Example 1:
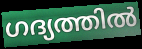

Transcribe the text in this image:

ഗദ്യത്തിൽ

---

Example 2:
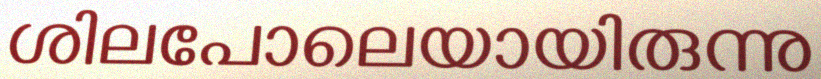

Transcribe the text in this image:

ശിലപോലെയായിരുന്നു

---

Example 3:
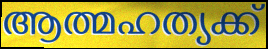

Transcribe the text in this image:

ആത്മഹത്യക്ക്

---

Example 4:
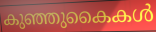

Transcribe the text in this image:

കുഞ്ഞുകൈകൾ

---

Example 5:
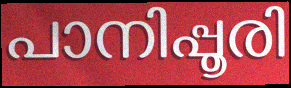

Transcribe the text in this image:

പാനിപ്പൂരി